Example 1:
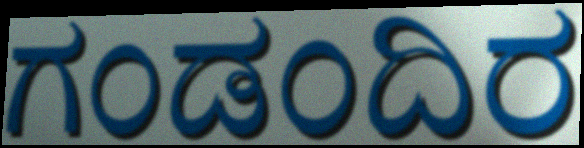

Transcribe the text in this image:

ಗಂಡಂದಿರ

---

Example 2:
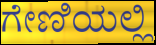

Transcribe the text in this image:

ಗೇಣಿಯಲ್ಲಿ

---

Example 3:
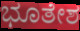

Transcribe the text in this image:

ಭೂತೇಶ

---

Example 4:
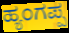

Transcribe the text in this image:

ಹ್ಯಂಗಪ್ಪ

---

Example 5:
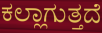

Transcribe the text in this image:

ಕಲ್ಲಾಗುತ್ತದೆ